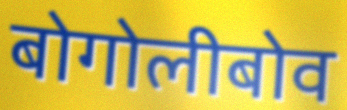
बोगोलीबोव